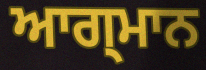
ਆਗ੍ਮਾਨ